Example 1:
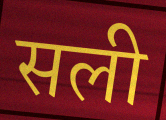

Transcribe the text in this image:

सली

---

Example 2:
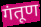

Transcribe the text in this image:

गंतूण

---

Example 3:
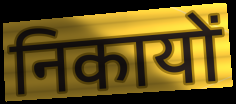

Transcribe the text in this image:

निकायों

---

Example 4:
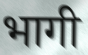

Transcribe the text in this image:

भागी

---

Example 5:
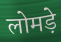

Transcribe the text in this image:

लोमड़े